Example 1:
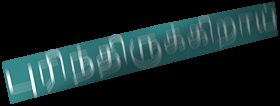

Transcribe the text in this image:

புரிந்திருக்கிறாய்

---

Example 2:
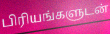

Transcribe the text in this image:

பிரியங்களுடன்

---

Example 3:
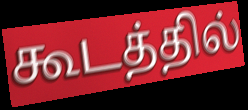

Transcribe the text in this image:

கூடத்தில்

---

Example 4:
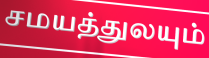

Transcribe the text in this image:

சமயத்துலயும்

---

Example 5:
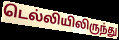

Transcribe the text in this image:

டெல்லியிலிருந்து